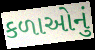
કળાઓનું